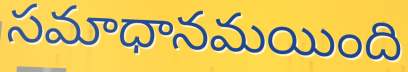
సమాధానమయింది